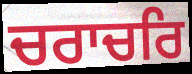
ਚਰਾਚਰਿ